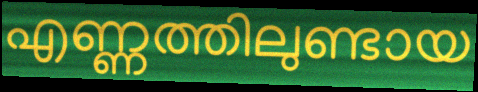
എണ്ണത്തിലുണ്ടായ